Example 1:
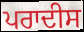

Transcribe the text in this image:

ਪਰਾਦੀਸ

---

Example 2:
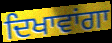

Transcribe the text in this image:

ਦਿਖਾਵਾਂਗਾ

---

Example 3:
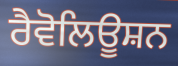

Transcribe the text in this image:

ਰੈਵੋਲਿਊਸ਼ਨ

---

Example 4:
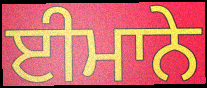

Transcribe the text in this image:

ਈਮਾਨੇ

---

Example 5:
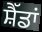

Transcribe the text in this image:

ਸ਼ੈੱਡਾਂ